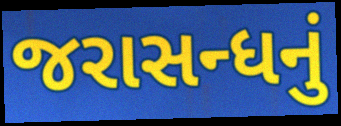
જરાસન્ધનું